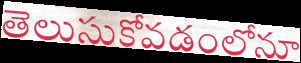
తెలుసుకోవడంలోనూ